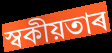
স্বকীয়তাৰ